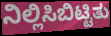
ನಿಲ್ಲಿಸಿಬಿಟ್ಟಿತು